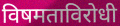
विषमताविरोधी